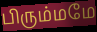
பிரும்மமே